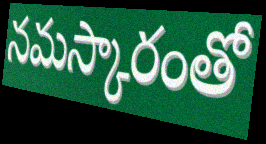
నమస్కారంతో